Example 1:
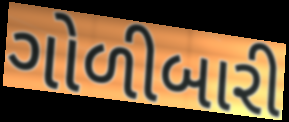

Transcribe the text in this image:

ગોળીબારી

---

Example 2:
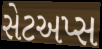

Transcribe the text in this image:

સેટઅપ્સ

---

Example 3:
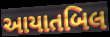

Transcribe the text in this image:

આયાતબિલ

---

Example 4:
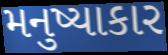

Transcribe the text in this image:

મનુષ્યાકાર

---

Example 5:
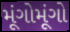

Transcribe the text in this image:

મૂંગોમૂંગો